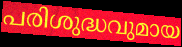
പരിശുദ്ധവുമായ